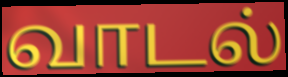
வாடல்